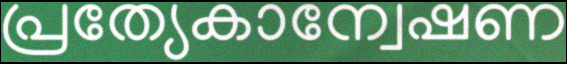
പ്രത്യേകാന്വേഷണ